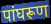
पांघरूण